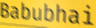
Babubhai